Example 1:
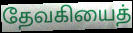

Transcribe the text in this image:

தேவகியைத்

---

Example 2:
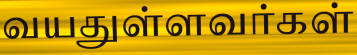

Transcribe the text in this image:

வயதுள்ளவர்கள்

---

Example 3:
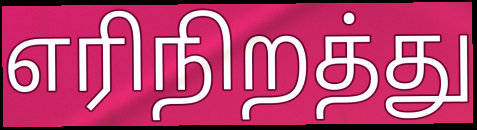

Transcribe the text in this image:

எரிநிறத்து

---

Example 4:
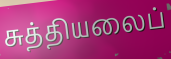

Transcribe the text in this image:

சுத்தியலைப்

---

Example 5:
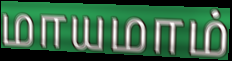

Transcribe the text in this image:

மாயமாம்